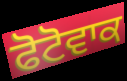
ਫੋਟੋਵਾਕ